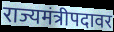
राज्यमंत्रीपदावर